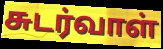
சுடர்வாள்